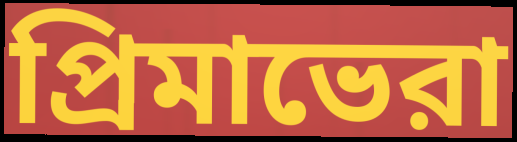
প্রিমাভেরা